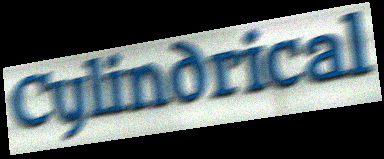
Cylindrical